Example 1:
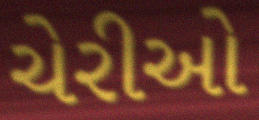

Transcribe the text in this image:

ચેરીઓ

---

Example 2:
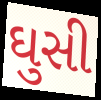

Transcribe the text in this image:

ઘુસી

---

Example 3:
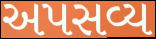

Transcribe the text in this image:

અપસવ્ય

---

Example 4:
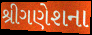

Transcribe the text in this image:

શ્રીગણેશના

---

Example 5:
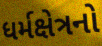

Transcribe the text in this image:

ધર્મક્ષેત્રનો